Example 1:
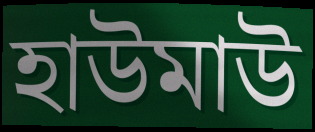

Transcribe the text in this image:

হাউমাউ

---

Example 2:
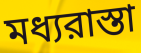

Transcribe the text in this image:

মধ্যরাস্তা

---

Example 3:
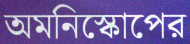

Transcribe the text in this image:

অমনিস্কোপের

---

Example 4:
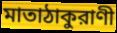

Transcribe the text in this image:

মাতাঠাকুরাণী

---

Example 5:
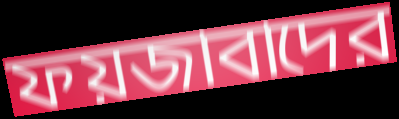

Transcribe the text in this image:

ফয়জাবাদের